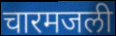
चारमजली